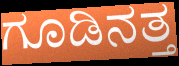
ಗೂಡಿನತ್ತ